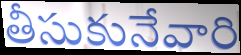
తీసుకునేవారి